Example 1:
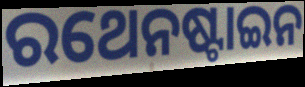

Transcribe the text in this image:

ରଥେନଷ୍ଟାଇନ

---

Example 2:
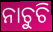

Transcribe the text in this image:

ନାଚୁଚି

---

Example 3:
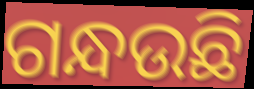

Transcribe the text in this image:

ଗନ୍ଧଉଛି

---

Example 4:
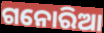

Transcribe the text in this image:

ଗନୋରିଆ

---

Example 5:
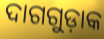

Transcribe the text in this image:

ଦାଗଗୁଡ଼ାକ